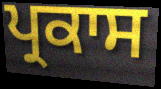
ਪ੍ਰਕਾਸ